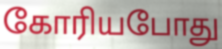
கோரியபோது